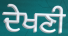
ਦੇਖਣੀ